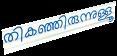
തികഞ്ഞിരുന്നുള്ളൂ